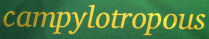
campylotropous